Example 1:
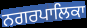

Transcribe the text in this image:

ਨਗਰਪਾਲਿਕਾ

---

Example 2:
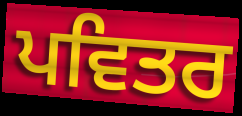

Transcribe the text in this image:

ਪਵਿਤਰ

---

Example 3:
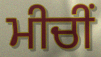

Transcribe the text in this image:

ਮੀਚੀਂ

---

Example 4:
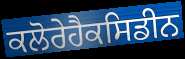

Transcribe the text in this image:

ਕਲੋਰੇਹੈਕਸਿਡੀਨ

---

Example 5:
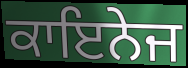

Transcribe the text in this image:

ਕਾਇਨੇਜ